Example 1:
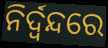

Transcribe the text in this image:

ନିର୍ଦ୍ୱନ୍ଦରେ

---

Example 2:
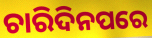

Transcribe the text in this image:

ଚାରିଦିନପରେ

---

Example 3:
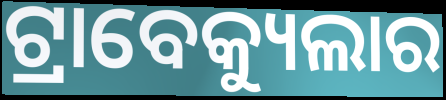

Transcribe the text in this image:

ଟ୍ରାବେକ୍ୟୁଲାର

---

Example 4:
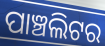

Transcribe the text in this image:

ପାଞ୍ଚଲିଟର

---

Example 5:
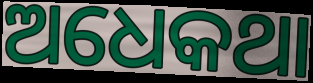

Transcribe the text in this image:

ଅଧେକଥା